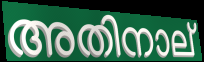
അതിനാല്